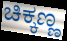
ಚಿಕ್ಕಣ್ಣ